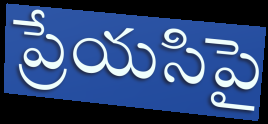
ప్రేయసిపై